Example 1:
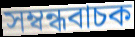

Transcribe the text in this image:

সম্বন্ধবাচক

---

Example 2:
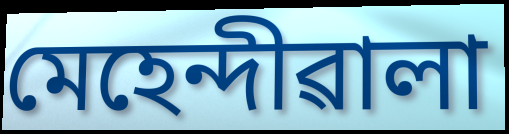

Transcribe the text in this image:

মেহেন্দীৱালা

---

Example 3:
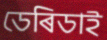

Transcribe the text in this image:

ডেৰিডাই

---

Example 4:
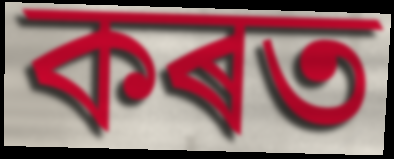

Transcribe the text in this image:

কৰত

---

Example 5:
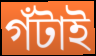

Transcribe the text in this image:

গঁটাই